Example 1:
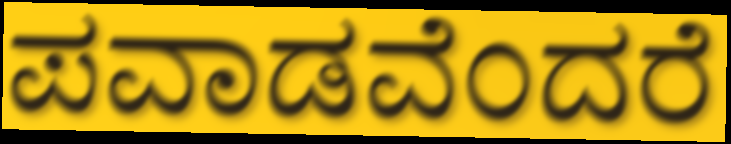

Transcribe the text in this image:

ಪವಾಡವೆಂದರೆ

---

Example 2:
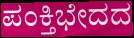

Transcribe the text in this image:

ಪಂಕ್ತಿಭೇದದ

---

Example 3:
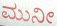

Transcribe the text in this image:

ಮುನೀ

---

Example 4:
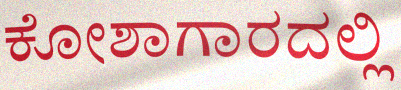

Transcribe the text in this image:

ಕೋಶಾಗಾರದಲ್ಲಿ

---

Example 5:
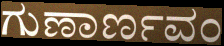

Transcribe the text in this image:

ಗುಣಾರ್ಣವಂ